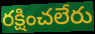
రక్షించలేరు